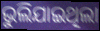
ଭୁଲିଯାଇଥିଲା